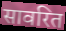
सावरित